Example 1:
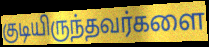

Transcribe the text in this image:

குடியிருந்தவர்களை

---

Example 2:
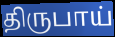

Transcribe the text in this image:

திருபாய்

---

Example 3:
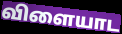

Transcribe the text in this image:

விளையாட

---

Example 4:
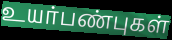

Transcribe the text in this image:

உயர்பண்புகள்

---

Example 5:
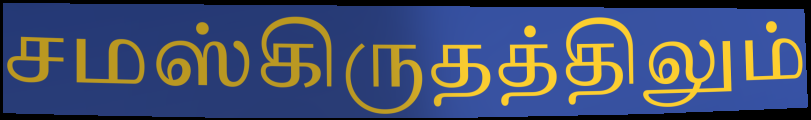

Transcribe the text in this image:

சமஸ்கிருதத்திலும்